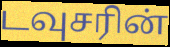
டவுசரின்